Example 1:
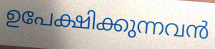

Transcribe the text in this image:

ഉപേക്ഷിക്കുന്നവൻ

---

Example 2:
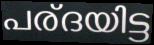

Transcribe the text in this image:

പര്ദയിട്ട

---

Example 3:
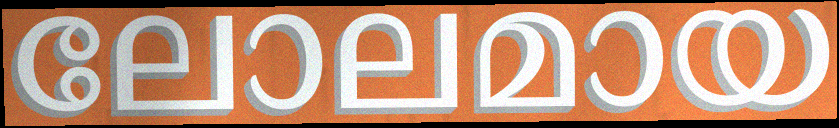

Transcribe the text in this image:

ലോലമായ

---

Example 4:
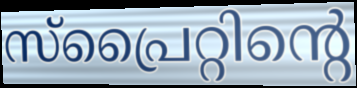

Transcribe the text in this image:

സ്പ്രൈറ്റിന്റെ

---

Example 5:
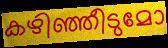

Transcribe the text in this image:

കഴിഞ്ഞീടുമോ